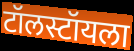
टॉलस्टॉयला